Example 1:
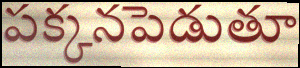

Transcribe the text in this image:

పక్కనపెడుతూ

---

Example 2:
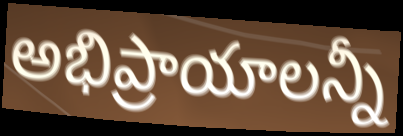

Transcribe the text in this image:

అభిప్రాయాలన్నీ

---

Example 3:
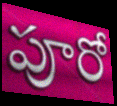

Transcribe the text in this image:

పూరో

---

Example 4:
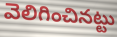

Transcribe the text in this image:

వెలిగించినట్టు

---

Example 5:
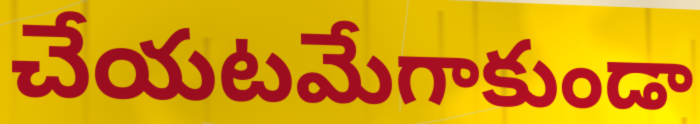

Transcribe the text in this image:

చేయటమేగాకుండా